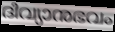
ദിവ്യാനുഭവം